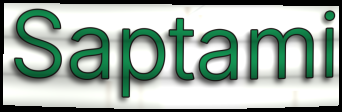
Saptami